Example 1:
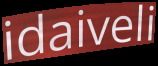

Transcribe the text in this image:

idaiveli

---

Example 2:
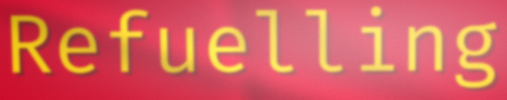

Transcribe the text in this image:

Refuelling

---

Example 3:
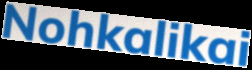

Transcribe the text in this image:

Nohkalikai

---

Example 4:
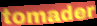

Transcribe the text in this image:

tomader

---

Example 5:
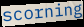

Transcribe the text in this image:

scorning